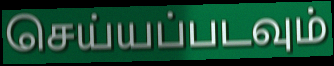
செய்யப்படவும்